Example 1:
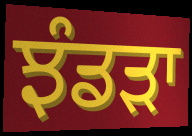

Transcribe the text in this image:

ਝੰਡੜਾ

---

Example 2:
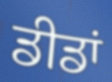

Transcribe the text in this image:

ਡੀਡਾਂ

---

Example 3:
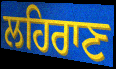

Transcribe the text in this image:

ਲਹਿਰਾਣ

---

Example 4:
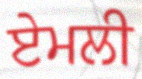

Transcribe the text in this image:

ਏਮਲੀ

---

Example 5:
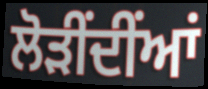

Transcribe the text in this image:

ਲੋੜੀਂਦੀਂਆਂ